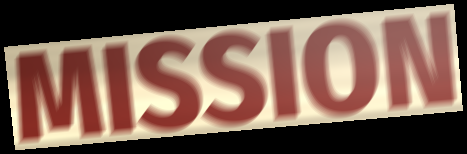
MISSION